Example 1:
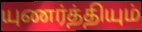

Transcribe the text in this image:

யுணர்த்தியும்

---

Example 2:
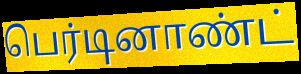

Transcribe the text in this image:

பெர்டினாண்ட்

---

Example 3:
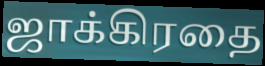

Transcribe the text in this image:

ஜாக்கிரதை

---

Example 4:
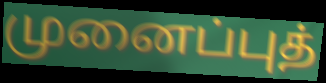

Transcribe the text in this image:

முனைப்புத்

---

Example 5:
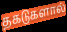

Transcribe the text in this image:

தகடுகளால்